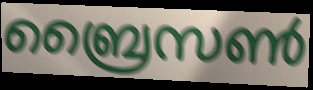
ബ്രൈസൺ